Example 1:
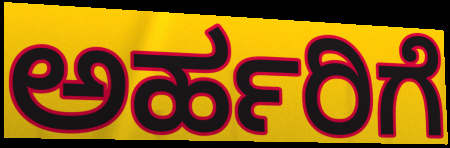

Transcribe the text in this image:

ಅರ್ಹರಿಗೆ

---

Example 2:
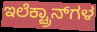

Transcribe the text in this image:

ಇಲೆಕ್ಟ್ರಾನ್‍ಗಳ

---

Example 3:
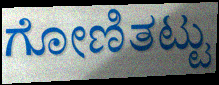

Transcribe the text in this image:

ಗೋಣಿತಟ್ಟು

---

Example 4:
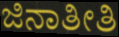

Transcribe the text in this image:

ಜಿನಾತೀತಿ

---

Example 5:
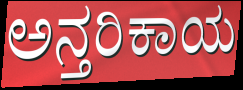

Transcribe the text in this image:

ಅನ್ತರಿಕಾಯ